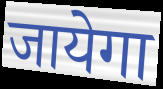
जायेगा